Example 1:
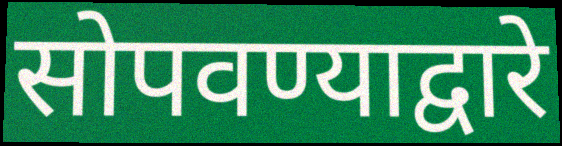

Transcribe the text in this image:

सोपवण्याद्वारे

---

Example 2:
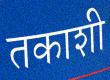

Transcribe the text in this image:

तकाशी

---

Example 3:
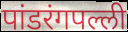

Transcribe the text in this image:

पांडरंगपल्ली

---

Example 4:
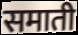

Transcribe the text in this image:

समाती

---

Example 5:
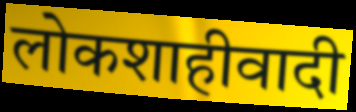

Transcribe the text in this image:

लोकशाहीवादी